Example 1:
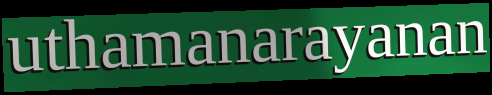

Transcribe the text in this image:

uthamanarayanan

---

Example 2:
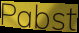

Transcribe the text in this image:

Pabst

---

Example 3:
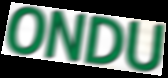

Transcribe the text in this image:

ONDU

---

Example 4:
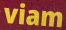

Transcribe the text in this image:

viam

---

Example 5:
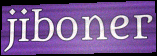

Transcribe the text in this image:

jiboner